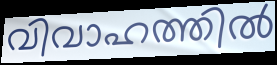
വിവാഹത്തിൽ